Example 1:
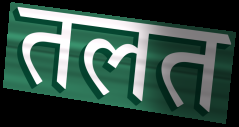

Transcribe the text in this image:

तलत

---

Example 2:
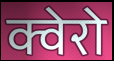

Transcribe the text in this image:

क्वेरो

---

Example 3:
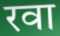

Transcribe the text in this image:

रवा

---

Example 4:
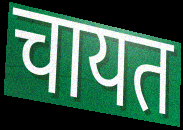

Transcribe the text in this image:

चायत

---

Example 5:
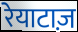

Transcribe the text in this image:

रेयाटाज़